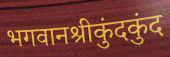
भगवानश्रीकुंदकुंद